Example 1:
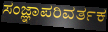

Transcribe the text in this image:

ಸಂಜ್ಞಾಪರಿವರ್ತಕ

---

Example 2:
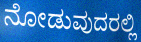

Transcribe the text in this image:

ನೋಡುವುದರಲ್ಲಿ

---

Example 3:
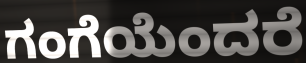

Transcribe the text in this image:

ಗಂಗೆಯೆಂದರೆ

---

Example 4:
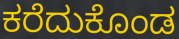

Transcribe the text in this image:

ಕರೆದುಕೊಂಡ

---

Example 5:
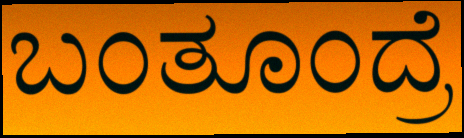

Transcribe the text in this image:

ಬಂತೂಂದ್ರೆ